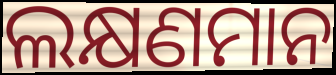
ଲକ୍ଷଣମାନ